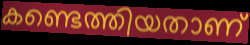
കണ്ടെത്തിയതാണ്